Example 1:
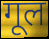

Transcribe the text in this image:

गूल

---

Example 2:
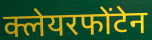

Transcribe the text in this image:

क्लेयरफोंटेन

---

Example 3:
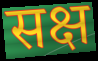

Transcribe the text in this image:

सक्ष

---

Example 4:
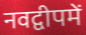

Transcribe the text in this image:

नवद्वीपमें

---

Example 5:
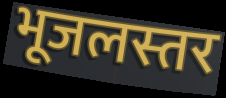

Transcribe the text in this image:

भूजलस्तर